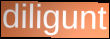
diligunt